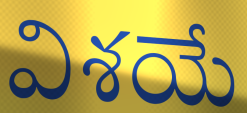
విశయే